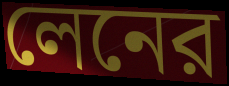
লেনের